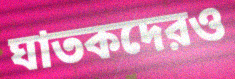
ঘাতকদেরও